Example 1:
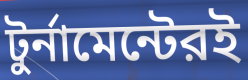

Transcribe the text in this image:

টুর্নামেন্টেরই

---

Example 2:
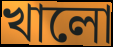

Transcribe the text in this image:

খালো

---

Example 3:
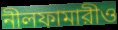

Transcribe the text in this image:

নীলফামারীও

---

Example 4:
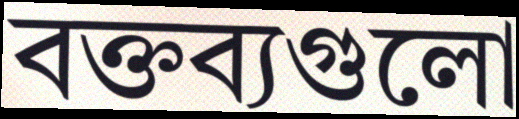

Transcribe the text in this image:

বক্তব্যগুলো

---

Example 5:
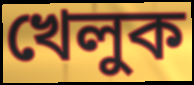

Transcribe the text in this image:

খেলুক